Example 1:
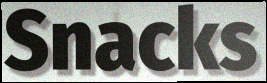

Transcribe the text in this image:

Snacks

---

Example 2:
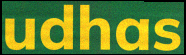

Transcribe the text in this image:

udhas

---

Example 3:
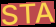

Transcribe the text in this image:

STA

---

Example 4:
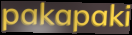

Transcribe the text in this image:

pakapaki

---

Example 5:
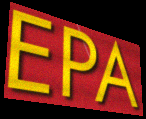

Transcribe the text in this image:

EPA